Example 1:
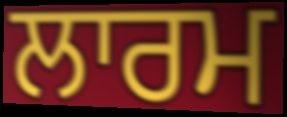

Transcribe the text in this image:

ਲਾਰਮ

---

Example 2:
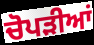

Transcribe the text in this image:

ਚੋਪੜੀਆਂ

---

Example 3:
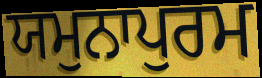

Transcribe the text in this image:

ਯਮੁਨਾਪੁਰਮ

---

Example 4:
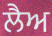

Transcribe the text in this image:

ਲੈਅ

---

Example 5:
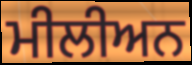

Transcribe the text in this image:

ਮੀਲੀਅਨ